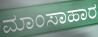
ಮಾಂಸಾಹಾರ